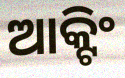
ଆକ୍ଟିଂ